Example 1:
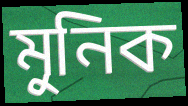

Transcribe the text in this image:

মুনিক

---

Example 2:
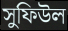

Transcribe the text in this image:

সুফিউল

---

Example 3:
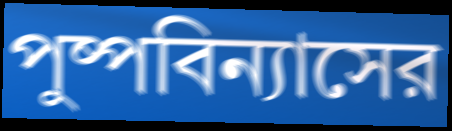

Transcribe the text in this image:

পুষ্পবিন্যাসের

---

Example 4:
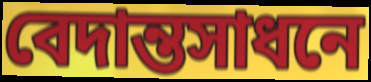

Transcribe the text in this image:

বেদান্তসাধনে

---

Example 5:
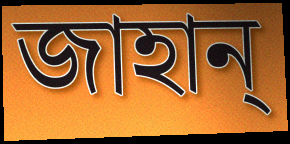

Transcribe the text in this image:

জাহান্